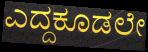
ಎದ್ದಕೂಡಲೇ